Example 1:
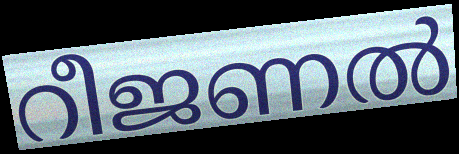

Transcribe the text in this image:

റീജണൽ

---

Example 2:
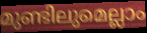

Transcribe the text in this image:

മുണ്ടിലുമെല്ലാം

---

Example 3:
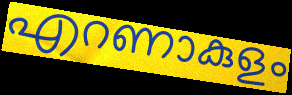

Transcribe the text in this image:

എറണാകുളം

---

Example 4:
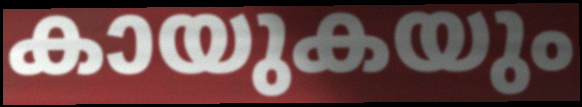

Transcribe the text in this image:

കായുകയും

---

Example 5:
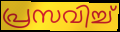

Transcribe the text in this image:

പ്രസവിച്ച്